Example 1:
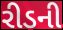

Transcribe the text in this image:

રીડની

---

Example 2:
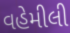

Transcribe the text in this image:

વહેમીલી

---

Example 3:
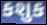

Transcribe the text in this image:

કશુક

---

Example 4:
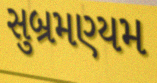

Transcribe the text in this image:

સુબ્રમણ્યમ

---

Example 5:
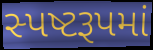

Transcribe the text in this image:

સ્પષ્ટરૂપમાં